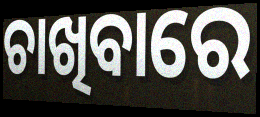
ଚାଖିବାରେ